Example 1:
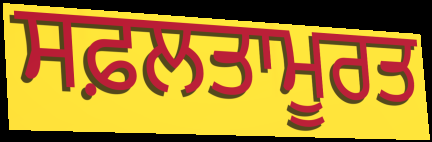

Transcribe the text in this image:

ਸਫ਼ਲਤਾਮੂਰਤ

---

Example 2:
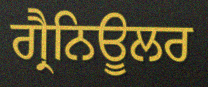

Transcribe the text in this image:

ਗ੍ਰੈਨਿਊਲਰ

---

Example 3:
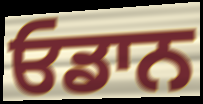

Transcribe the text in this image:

ਓਡਾਨ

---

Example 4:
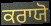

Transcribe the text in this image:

ਕਰਾਯੋ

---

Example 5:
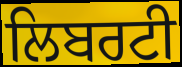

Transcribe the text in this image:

ਲਿਬਰਟੀ